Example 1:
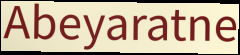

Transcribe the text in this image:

Abeyaratne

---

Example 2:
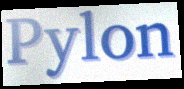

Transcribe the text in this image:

Pylon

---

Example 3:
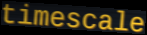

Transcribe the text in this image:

timescale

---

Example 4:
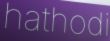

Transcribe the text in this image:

hathodi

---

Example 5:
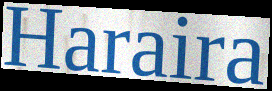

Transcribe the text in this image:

Haraira